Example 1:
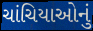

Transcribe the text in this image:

ચાંચિયાઓનું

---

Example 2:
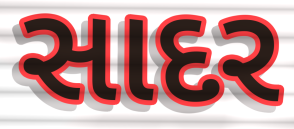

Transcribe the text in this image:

સાદર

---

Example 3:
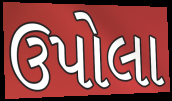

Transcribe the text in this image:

ઉપોલા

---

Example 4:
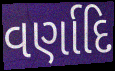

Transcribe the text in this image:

વર્ણાદિ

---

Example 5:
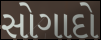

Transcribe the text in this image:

સોગાદો